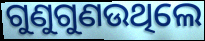
ଗୁଣୁଗୁଣଉଥିଲେ